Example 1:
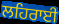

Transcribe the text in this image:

ਲਹਿਰਾਈ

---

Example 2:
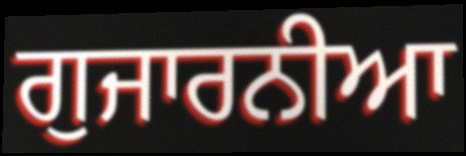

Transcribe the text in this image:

ਗੁਜਾਰਨੀਆ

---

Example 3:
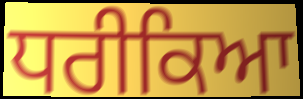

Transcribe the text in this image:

ਧਰੀਕਿਆ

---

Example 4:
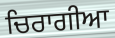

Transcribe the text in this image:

ਚਿਰਾਗੀਆ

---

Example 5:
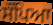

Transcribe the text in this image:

ਸੌਂਪਿਆ